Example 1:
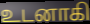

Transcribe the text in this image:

உடனாகி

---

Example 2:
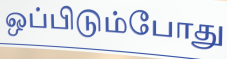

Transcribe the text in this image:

ஒப்பிடும்போது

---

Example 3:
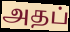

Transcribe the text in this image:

அதப்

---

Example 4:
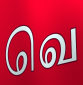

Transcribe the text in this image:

வெ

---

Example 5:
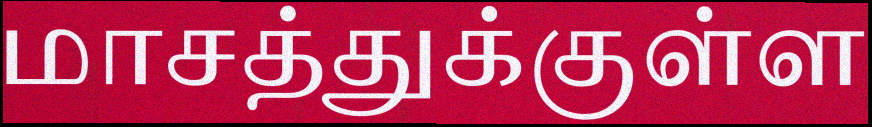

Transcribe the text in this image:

மாசத்துக்குள்ள